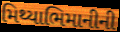
મિથ્યાભિમાનીની